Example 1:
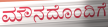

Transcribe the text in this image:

ಮೌನದೊಂದಿಗೆ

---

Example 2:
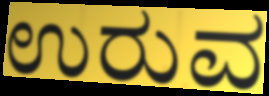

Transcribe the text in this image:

ಉರುವ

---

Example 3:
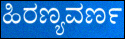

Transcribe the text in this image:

ಹಿರಣ್ಯವರ್ಣ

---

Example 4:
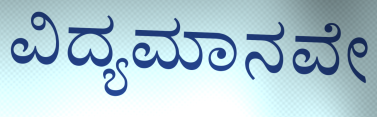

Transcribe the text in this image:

ವಿದ್ಯಮಾನವೇ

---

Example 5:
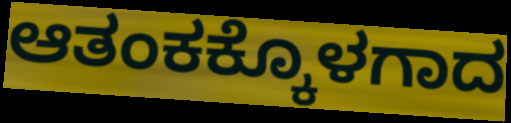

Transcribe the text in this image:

ಆತಂಕಕ್ಕೊಳಗಾದ